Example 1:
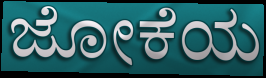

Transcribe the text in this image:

ಜೋಕೆಯ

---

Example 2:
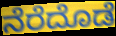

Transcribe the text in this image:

ನೆರೆದೊಡೆ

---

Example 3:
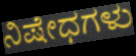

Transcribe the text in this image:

ನಿಷೇಧಗಳು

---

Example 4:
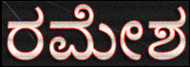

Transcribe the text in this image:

ರಮೇಶ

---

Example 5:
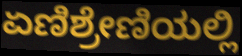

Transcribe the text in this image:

ಏಣಿಶ್ರೇಣಿಯಲ್ಲಿ